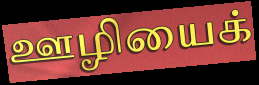
ஊழியைக்